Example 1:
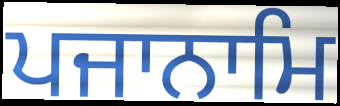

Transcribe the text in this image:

ਪਜਾਨਾਮਿ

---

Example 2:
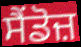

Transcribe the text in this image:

ਸੈਂਡੋਜ਼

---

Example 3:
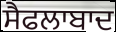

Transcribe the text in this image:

ਸੈਫਲਾਬਾਦ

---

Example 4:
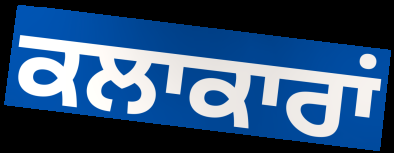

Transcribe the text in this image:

ਕਲਾਕਾਰਾਂ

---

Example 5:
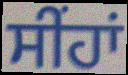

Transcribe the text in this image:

ਸੀਂਹਾਂ